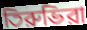
তিরুভিরা